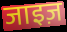
जाइज़